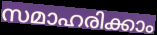
സമാഹരിക്കാം